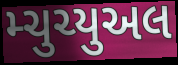
મ્ચુચ્યુઅલ